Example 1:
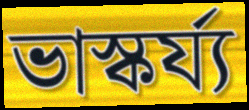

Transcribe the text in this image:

ভাস্কৰ্য্য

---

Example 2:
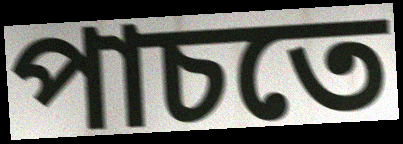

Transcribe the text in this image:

পাচতে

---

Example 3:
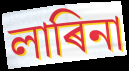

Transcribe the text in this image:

লাৰিনা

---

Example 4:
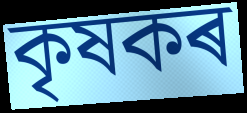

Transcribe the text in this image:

কৃষকৰ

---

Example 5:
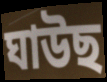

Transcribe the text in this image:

ঘাউছ